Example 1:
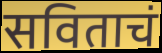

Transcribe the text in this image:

सविताचं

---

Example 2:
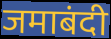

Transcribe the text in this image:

जमाबंदी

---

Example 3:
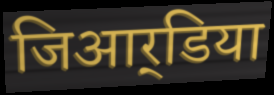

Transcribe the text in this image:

जिआर्डिया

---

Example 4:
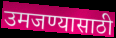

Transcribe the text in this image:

उमजण्यासाठी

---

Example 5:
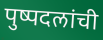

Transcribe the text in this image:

पुष्पदलांची